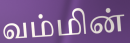
வம்மின்